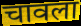
चावला